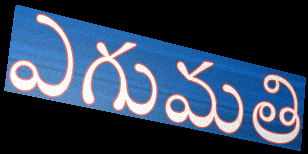
ఎగుమతి